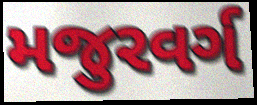
મજુરવર્ગ